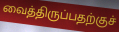
வைத்திருப்பதற்குச்